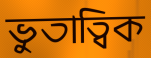
ভুতাত্বিক